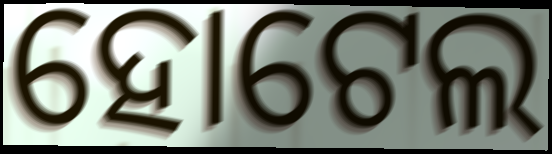
ହୋଟେଲ